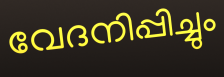
വേദനിപ്പിച്ചും